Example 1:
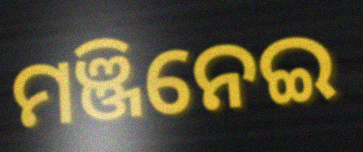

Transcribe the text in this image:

ମଞ୍ଜିନେଇ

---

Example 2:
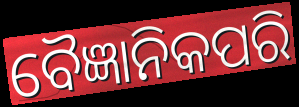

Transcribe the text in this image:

ବୈଜ୍ଞାନିକପରି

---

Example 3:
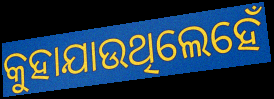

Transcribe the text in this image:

କୁହାଯାଉଥିଲେହେଁ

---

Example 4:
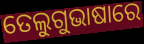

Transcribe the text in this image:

ତେଲୁଗୁଭାଷାରେ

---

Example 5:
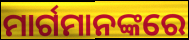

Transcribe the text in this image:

ମାର୍ଗମାନଙ୍କରେ